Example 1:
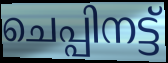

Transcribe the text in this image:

ചെപ്പിനട്ട്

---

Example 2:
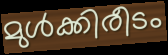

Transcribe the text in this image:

മുൾക്കിരീടം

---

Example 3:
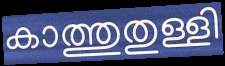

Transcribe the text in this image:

കാത്തുതുള്ളി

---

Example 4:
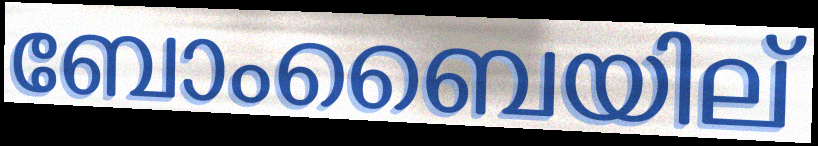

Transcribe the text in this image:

ബോംബൈയില്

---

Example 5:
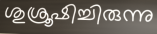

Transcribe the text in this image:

ശുശ്രൂഷിച്ചിരുന്നു